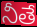
నీతే